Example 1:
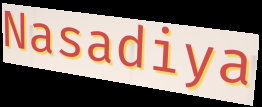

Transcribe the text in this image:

Nasadiya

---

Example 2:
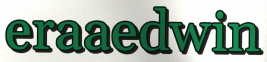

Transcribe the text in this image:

eraaedwin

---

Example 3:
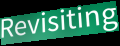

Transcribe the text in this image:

Revisiting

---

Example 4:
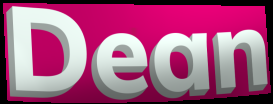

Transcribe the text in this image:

Dean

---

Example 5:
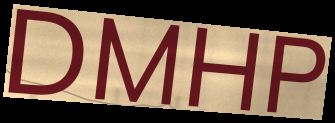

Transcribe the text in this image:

DMHP